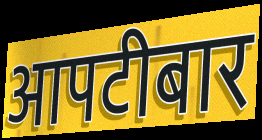
आपटीबार